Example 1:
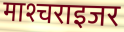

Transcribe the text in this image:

माश्चराइजर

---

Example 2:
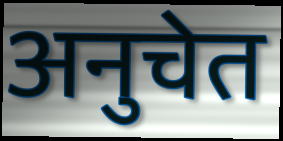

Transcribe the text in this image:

अनुचेत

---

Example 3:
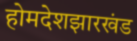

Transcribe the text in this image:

होमदेशझारखंड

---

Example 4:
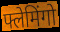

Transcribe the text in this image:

फ्लेमिंगो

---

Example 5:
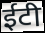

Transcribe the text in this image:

ईटी